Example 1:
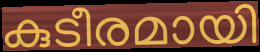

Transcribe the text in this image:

കുടീരമായി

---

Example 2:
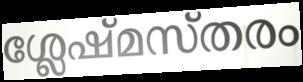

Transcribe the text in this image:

ശ്ലേഷ്മസ്തരം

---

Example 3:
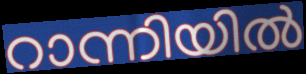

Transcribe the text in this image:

റാന്നിയിൽ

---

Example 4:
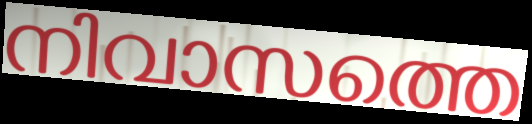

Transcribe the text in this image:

നിവാസത്തെ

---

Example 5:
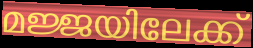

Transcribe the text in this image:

മജ്ജയിലേക്ക്